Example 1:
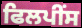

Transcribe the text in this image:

ਫਿਲਪੀਂਸ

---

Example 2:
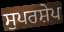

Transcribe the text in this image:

ਸੁਪਰਸ਼ੇਪ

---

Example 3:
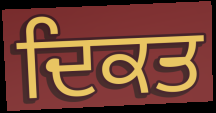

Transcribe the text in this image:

ਦਿਕਤ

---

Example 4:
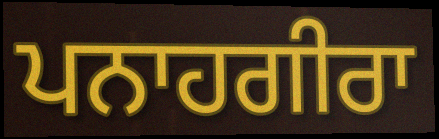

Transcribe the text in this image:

ਪਨਾਹਗੀਰਾ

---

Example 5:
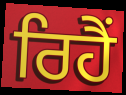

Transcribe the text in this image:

ਰਿਹੈੰ